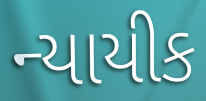
ન્યાયીક